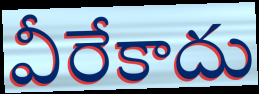
వీరేకాదు